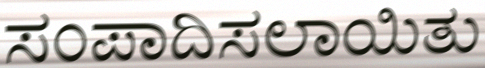
ಸಂಪಾದಿಸಲಾಯಿತು